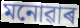
মনোৱাৰ